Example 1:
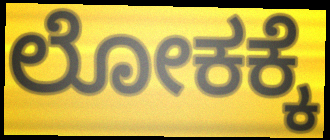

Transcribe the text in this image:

ಲೋಕಕ್ಕೆ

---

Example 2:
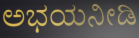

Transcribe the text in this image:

ಅಭಯನೀಡಿ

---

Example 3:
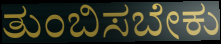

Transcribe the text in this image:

ತುಂಬಿಸಬೇಕು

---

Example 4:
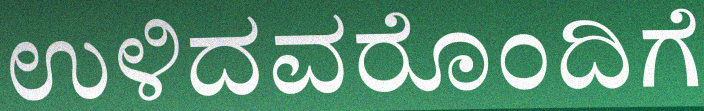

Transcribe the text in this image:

ಉಳಿದವರೊಂದಿಗೆ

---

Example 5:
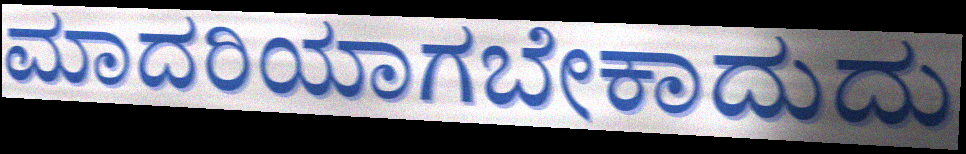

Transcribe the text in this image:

ಮಾದರಿಯಾಗಬೇಕಾದುದು